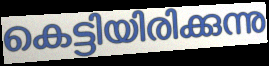
കെട്ടിയിരിക്കുന്നു